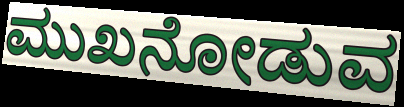
ಮುಖನೋಡುವ